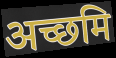
अच्छमि